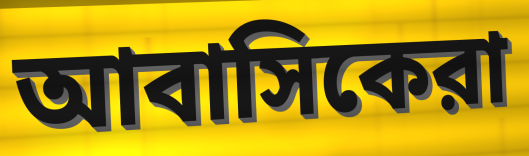
আবাসিকেরা